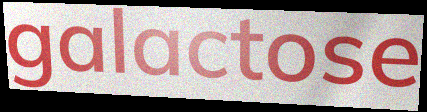
galactose